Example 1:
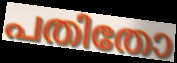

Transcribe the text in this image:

പതിതോ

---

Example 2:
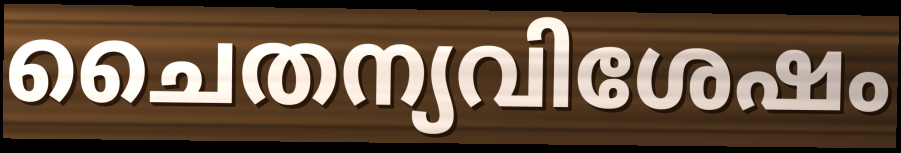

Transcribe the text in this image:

ചൈതന്യവിശേഷം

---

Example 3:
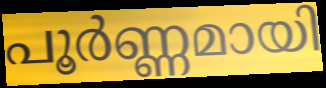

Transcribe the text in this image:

പൂർണ്ണമായി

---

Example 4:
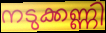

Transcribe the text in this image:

നടുക്കണ്ണി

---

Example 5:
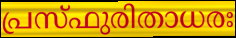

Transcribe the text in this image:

പ്രസ്ഫുരിതാധരഃ